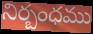
నిర్బంధము